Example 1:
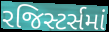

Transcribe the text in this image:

રજિસ્ટર્સમાં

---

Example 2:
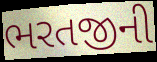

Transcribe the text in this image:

ભરતજીની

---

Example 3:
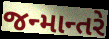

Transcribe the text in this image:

જન્માન્તરે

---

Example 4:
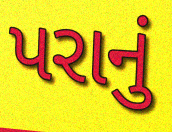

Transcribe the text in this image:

પરાનું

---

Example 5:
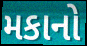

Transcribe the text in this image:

મકાનો